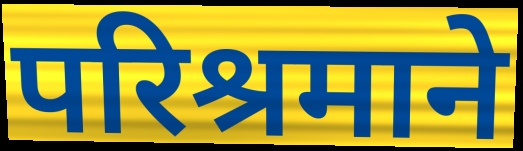
परिश्रमाने